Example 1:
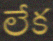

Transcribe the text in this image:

లేక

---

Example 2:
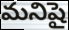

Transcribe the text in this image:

మనిషై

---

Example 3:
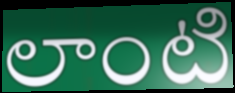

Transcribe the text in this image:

లాంటి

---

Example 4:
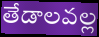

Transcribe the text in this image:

తేడాలవల్ల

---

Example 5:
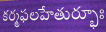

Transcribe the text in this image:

కర్మఫలహేతుర్భూః